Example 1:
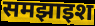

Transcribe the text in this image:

समझाइश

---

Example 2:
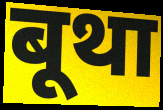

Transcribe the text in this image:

बूथा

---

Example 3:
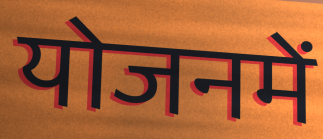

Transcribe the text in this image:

योजनमें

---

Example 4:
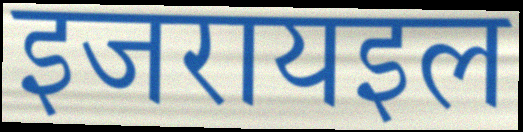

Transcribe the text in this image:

इजरायइल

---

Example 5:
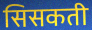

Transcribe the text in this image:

सिसकती